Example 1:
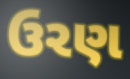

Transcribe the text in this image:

ઉરણ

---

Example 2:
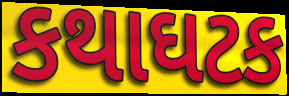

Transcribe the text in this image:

કથાઘટક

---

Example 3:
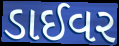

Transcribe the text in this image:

ડાઈવર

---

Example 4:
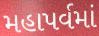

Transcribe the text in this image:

મહાપર્વમાં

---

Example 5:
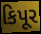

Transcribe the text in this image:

કિપૂર